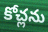
కోచ్లను